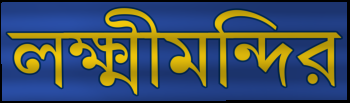
লক্ষ্মীমন্দির